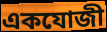
একযোজী